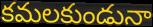
కమలకుండునా